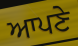
ਆਪਣੇ